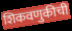
शिकवणुकीची